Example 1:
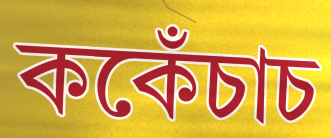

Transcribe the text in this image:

ককেঁচাচ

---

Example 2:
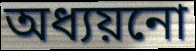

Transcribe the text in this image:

অধ্যয়নো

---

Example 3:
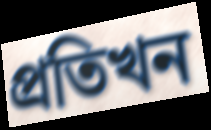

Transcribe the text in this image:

প্ৰতিখন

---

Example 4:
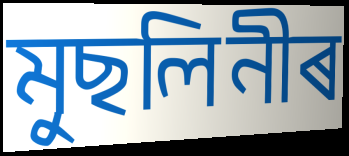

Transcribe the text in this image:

মুছলিনীৰ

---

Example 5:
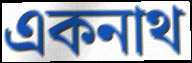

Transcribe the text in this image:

একনাথ